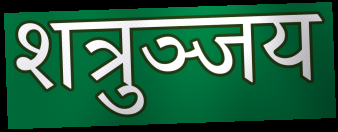
शत्रुञ्जय